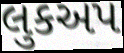
લુકઅપ